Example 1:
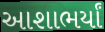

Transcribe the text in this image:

આશાભર્યાં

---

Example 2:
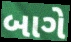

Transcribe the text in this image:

બાગે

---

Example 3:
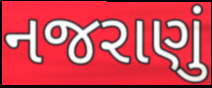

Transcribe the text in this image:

નજરાણું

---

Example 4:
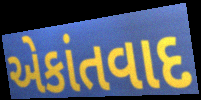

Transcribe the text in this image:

એકાંતવાદ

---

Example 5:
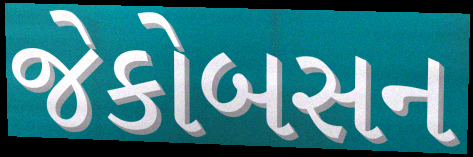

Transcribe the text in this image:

જેકોબસન